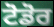
ਟੋਡੋਰ